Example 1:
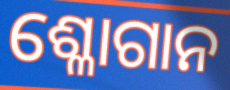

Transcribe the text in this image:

ଶ୍ଳୋଗାନ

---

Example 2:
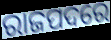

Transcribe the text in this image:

ରାଜପଦରେ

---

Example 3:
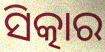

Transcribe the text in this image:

ସିତ୍କାର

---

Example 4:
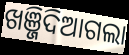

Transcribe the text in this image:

ଖଞ୍ଜିଦିଆଗଲା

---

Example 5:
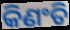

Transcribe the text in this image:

କିଣଂତି